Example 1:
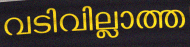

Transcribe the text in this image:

വടിവില്ലാത്ത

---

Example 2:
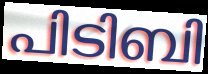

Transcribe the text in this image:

പിടിബി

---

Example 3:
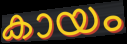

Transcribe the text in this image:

കായം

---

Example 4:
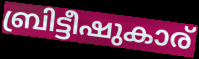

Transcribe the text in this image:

ബ്രിട്ടീഷുകാര്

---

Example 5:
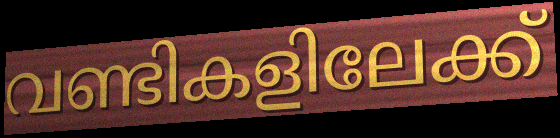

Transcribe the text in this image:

വണ്ടികളിലേക്ക്